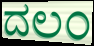
ದಲಂ